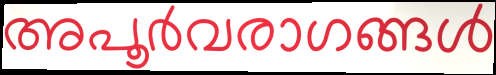
അപൂർവരാഗങ്ങൾ